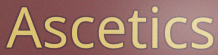
Ascetics